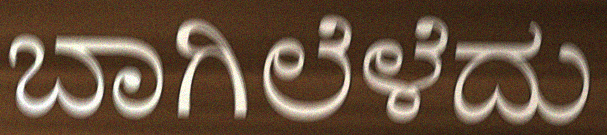
ಬಾಗಿಲೆಳೆದು